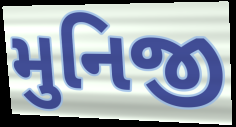
મુનિજી